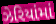
ઝેરિયાંમાં